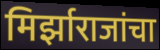
मिर्झाराजांचा